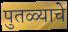
पुतळ्याचे